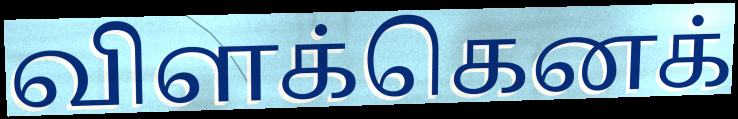
விளக்கெனக்